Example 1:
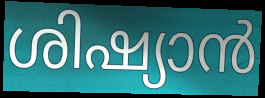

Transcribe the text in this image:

ശിഷ്യാൻ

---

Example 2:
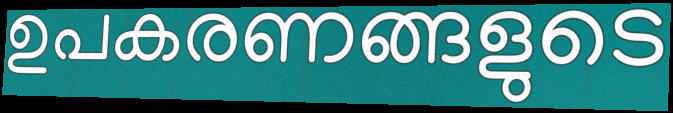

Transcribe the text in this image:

ഉപകരണങ്ങളുടെ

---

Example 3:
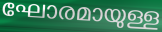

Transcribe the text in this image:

ഘോരമായുള്ള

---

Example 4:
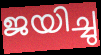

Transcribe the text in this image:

ജയിച്ചു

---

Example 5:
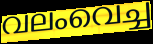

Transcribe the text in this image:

വലംവെച്ച